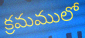
క్రమములో